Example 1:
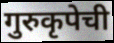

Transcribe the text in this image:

गुरुकृपेची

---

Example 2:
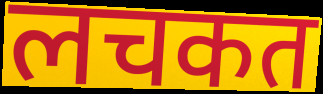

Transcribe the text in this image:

लचकत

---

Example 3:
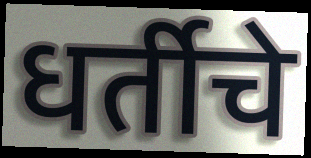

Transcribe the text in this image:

धर्तीचे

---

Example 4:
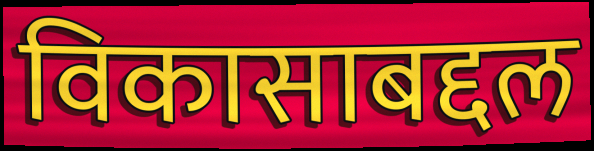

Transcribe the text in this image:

विकासाबद्दल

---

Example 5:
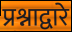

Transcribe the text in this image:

प्रश्नाद्वारे